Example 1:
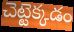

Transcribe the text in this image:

చెట్టెక్కడం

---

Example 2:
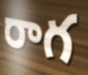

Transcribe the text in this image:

రాగ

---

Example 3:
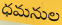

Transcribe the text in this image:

ధమనుల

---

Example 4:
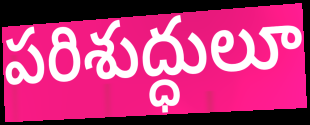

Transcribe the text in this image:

పరిశుద్ధులూ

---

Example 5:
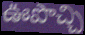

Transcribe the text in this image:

ఊపొచ్చి